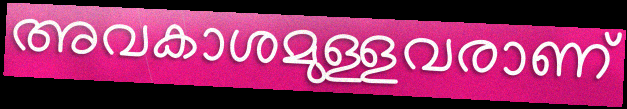
അവകാശമുള്ളവരാണ്